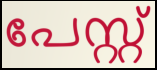
പേസ്റ്റ്